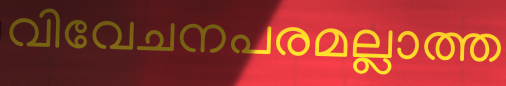
വിവേചനപരമല്ലാത്ത